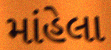
માંહેલા